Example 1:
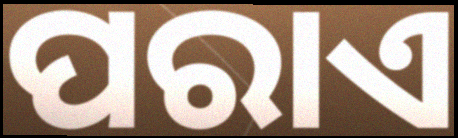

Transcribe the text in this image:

ପରାଏ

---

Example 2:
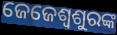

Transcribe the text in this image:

ଜେଜେଶ୍ୱଶୁରଙ୍କ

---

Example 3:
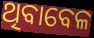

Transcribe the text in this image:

ଥିବାବେଳ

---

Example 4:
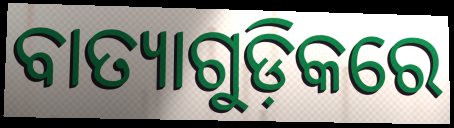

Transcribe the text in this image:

ବାତ୍ୟାଗୁଡ଼ିକରେ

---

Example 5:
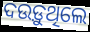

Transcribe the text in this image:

ଦଉଡ଼ୁଥିଲେ